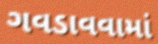
ગવડાવવામાં